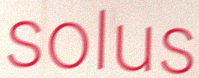
solus